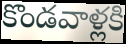
కొండవాళ్లకి